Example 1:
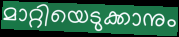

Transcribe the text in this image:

മാറ്റിയെടുക്കാനും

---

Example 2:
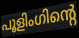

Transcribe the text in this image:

പൂളിംഗിന്റെ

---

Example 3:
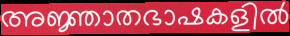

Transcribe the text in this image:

അജ്ഞാതഭാഷകളിൽ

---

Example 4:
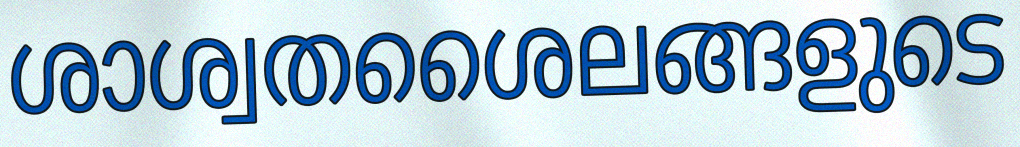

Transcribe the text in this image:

ശാശ്വതശൈലങ്ങളുടെ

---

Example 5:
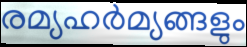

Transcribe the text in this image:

രമ്യഹർമ്യങ്ങളും